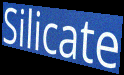
Silicate